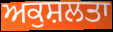
ਅਕੁਸ਼ਲਤਾ